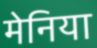
मेनिया